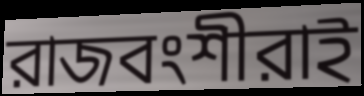
রাজবংশীরাই